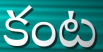
కంట